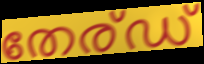
തേര്ഡ്